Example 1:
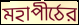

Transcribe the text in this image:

মহাপীঠের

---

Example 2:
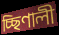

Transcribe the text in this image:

চ্ছিণালী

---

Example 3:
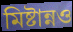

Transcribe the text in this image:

মিষ্টান্নও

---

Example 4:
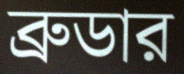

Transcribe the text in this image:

ব্রুডার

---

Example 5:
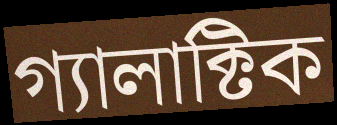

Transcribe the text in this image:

গ্যালাক্টিক